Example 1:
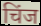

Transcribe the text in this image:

चिंज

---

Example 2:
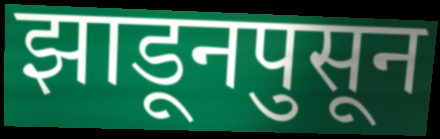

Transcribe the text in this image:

झाडूनपुसून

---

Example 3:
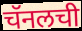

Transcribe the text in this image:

चॅनलची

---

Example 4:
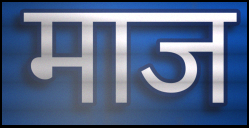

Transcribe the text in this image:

माज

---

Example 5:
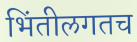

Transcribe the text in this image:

भिंतीलगतच